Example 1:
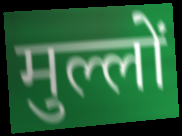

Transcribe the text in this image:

मुल्लों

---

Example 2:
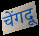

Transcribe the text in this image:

चेंगदू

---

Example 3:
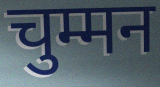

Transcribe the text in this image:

चुम्मन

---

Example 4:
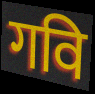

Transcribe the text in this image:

गवि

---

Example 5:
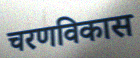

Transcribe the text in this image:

चरणविकास